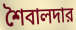
শৈবালদার